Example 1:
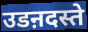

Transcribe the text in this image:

उडऩदस्ते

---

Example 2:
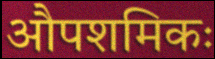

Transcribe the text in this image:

औपशमिकः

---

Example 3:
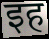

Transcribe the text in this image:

इह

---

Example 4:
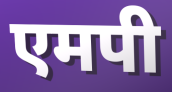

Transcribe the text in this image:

एमपी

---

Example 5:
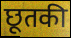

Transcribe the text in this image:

छूतकी